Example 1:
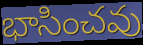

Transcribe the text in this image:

భాసించవు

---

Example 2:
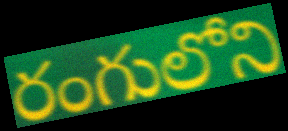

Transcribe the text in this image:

రంగులోని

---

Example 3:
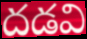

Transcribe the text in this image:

దడవి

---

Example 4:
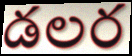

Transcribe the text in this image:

డలర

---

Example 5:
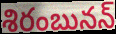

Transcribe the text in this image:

శిరంబునన్